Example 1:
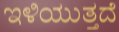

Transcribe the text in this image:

ಇಳಿಯುತ್ತದೆ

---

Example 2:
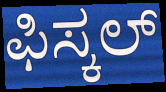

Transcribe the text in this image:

ಫಿಸ್ಕಲ್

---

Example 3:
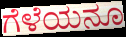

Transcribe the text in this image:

ಗೆಳೆಯನೂ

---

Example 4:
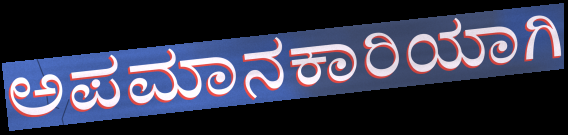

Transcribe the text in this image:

ಅಪಮಾನಕಾರಿಯಾಗಿ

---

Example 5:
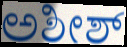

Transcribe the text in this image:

ಅಶೀಶ್